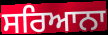
ਸਰਿਆਨਾ